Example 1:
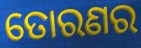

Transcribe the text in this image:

ତୋରଣର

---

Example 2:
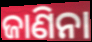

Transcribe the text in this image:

ଜାଣିନା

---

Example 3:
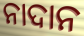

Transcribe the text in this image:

ନାଦାନ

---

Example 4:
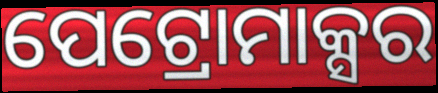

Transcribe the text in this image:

ପେଟ୍ରୋମାକ୍ସର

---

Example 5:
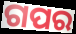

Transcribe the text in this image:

ଗପର